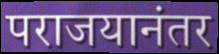
पराजयानंतर